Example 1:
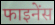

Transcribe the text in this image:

फाइनेंस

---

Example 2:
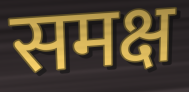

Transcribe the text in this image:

समक्ष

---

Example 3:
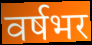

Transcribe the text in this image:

वर्षभर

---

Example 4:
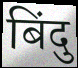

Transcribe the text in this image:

बिंदु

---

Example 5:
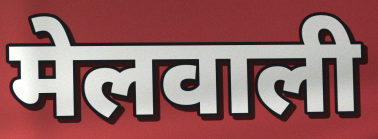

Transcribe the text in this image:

मेलवाली